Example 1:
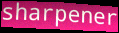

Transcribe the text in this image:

sharpener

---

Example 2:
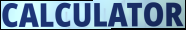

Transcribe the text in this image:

CALCULATOR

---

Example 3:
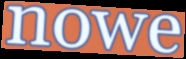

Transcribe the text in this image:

nowe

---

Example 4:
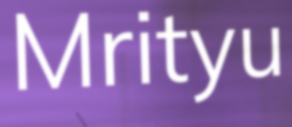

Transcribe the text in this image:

Mrityu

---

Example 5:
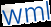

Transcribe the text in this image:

wml